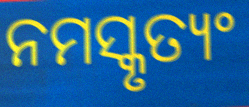
ନମସ୍କୃତ୍ୟଂ